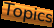
Topics